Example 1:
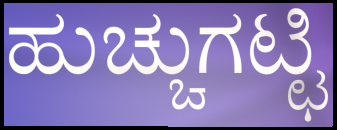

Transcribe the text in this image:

ಹುಚ್ಚುಗಟ್ಟಿ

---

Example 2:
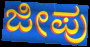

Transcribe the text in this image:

ಜೀಪು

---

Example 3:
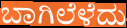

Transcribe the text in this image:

ಬಾಗಿಲೆಳೆದು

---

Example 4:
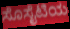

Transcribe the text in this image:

ಸೊಸೈಟಿಯ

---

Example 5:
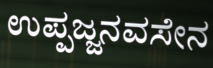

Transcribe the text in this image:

ಉಪ್ಪಜ್ಜನವಸೇನ